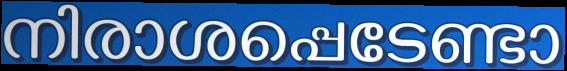
നിരാശപ്പെടേണ്ടാ